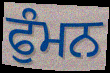
ਫੁੰਮਨ